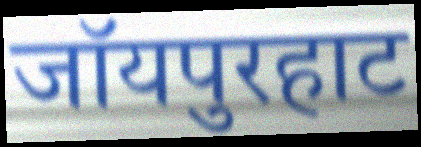
जॉयपुरहाट